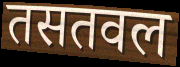
तसतवल